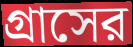
গ্রাসের